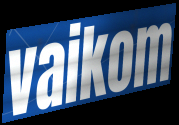
vaikom